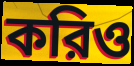
করিও